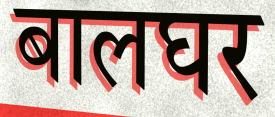
बालघर